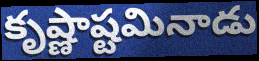
కృష్ణాష్టమినాడు